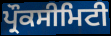
ਪ੍ਰੌਕਸੀਮਿਟੀ